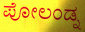
ಪೋಲಂಡ್ನ